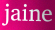
jaine